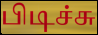
பிடிச்சு